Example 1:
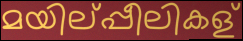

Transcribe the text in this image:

മയില്പ്പീലികള്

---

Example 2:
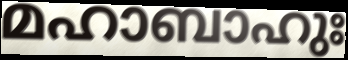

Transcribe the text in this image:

മഹാബാഹുഃ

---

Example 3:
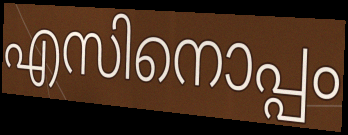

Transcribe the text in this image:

എസിനൊപ്പം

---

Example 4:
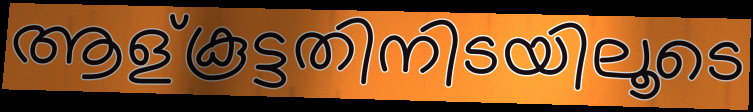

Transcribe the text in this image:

ആള്കൂട്ടതിനിടയിലൂടെ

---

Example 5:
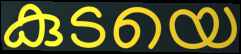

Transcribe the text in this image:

കുടയെ